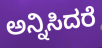
ಅನ್ನಿಸಿದರೆ